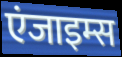
एंजाइम्‍स